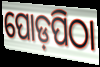
ପୋଡ଼ପିଠା